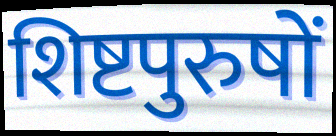
शिष्टपुरुषों